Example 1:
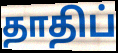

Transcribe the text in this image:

தாதிப்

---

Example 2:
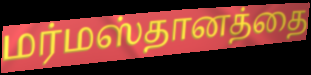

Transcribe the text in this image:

மர்மஸ்தானத்தை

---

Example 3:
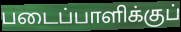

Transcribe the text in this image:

படைப்பாளிக்குப்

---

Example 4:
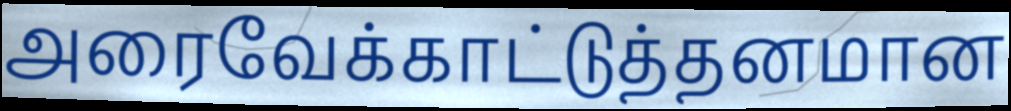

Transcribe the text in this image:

அரைவேக்காட்டுத்தனமான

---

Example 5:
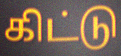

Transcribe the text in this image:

கிட்டு